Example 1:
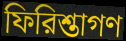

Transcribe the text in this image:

ফিরিশ্তাগণ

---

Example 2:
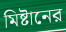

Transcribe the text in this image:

মিষ্টানের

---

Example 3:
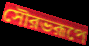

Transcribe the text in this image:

সৌরভরূপে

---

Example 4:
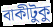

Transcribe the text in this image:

বাকীটুকু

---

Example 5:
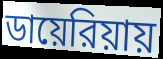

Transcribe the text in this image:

ডায়েরিয়ায়